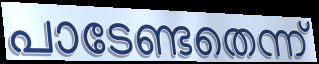
പാടേണ്ടതെന്ന്